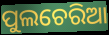
ପୁଲଚେରିଆ